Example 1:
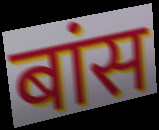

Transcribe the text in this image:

बांस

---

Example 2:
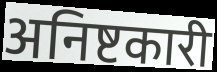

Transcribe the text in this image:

अनिष्टकारी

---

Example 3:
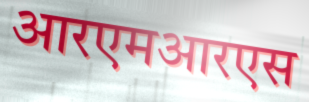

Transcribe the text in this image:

आरएमआरएस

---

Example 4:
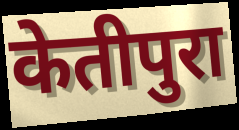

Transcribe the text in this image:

केतीपुरा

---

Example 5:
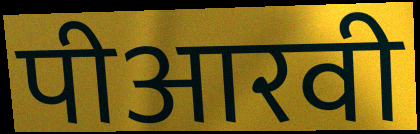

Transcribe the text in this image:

पीआरवी